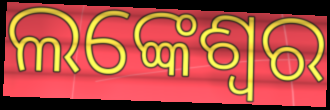
ଲଙ୍କେଶ୍ବର